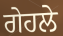
ਗੇਹਲੇ